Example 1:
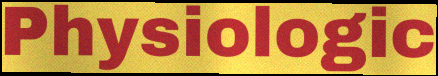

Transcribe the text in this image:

Physiologic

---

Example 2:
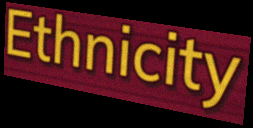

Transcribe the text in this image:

Ethnicity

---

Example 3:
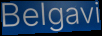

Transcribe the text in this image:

Belgavi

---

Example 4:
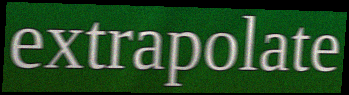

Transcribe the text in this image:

extrapolate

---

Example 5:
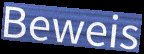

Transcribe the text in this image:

Beweis